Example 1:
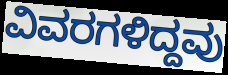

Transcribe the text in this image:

ವಿವರಗಳಿದ್ದವು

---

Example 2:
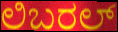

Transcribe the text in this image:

ಲಿಬರಲ್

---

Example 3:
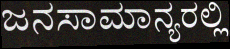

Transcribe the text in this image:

ಜನಸಾಮಾನ್ಯರಲ್ಲಿ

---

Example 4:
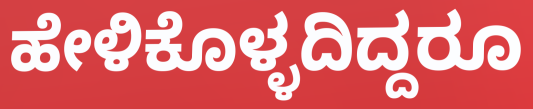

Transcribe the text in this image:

ಹೇಳಿಕೊಳ್ಳದಿದ್ದರೂ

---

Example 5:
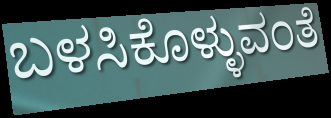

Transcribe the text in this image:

ಬಳಸಿಕೊಳ್ಳುವಂತೆ